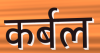
कर्बल